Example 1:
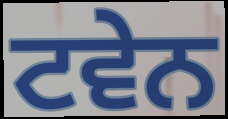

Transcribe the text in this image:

ਟਵੇਨ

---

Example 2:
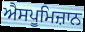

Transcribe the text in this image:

ਐਸਪੂਮਿਜ਼ਾਨ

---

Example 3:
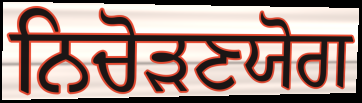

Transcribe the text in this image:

ਨਿਚੋੜਣਯੋਗ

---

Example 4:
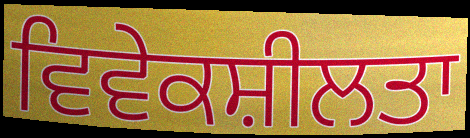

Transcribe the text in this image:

ਵਿਵੇਕਸ਼ੀਲਤਾ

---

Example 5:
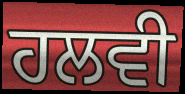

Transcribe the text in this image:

ਹਲਵੀ